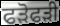
ਫੜੋਫੜੀ